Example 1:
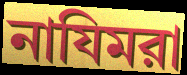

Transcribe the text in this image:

নাযিমরা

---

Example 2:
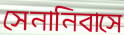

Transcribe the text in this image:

সেনানিবাসে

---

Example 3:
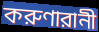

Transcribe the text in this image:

করুণারানী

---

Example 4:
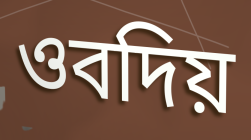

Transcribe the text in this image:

ওবদিয়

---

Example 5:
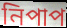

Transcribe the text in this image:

নিপাপ